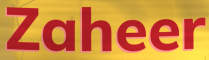
Zaheer